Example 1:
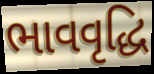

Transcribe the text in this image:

ભાવવૃદ્ધિ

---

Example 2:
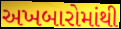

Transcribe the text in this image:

અખબારોમાંથી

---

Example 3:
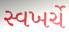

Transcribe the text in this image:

સ્વખર્ચે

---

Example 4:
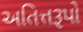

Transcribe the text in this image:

અતિત્તરૂપો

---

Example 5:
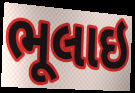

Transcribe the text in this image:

ભૂલાઇ